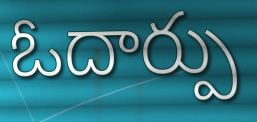
ఓదార్పు